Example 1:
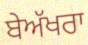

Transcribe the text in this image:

ਬੇਅੱਖਰਾ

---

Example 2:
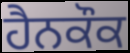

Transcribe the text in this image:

ਹੈਨਕੌਕ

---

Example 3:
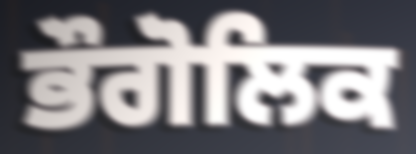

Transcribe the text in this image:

ਭੌਗੋਲਿਕ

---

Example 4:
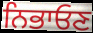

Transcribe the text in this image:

ਨਿਭਾਓਣ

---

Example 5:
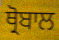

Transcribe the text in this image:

ਥ੍ਰੋਬਾਲ